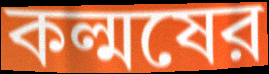
কল্মষের